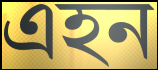
এহন